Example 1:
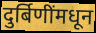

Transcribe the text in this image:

दुर्बिणींमधून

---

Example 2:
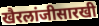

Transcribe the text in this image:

खैरलांजीसारखी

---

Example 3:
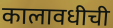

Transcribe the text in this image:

कालावधीची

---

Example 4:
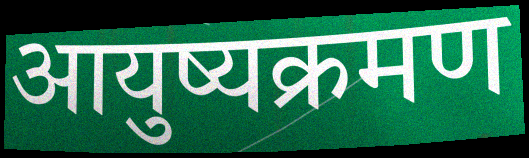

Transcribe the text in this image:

आयुष्यक्रमण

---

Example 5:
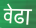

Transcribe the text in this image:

वेढा